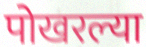
पोखरल्या